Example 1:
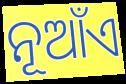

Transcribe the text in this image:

ନୂଆଁଏ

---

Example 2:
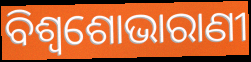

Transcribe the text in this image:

ବିଶ୍ୱଶୋଭାରାଣୀ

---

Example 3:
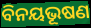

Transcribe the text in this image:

ବିନୟଭୂଷଣ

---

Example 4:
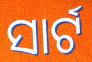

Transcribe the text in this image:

ସାର୍ଟ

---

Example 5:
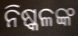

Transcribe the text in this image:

ନିଷ୍କଳଙ୍କ